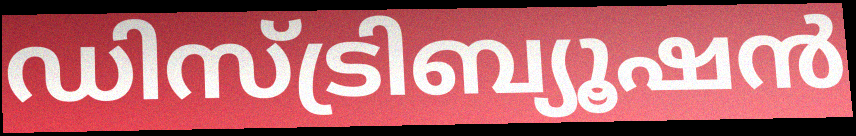
ഡിസ്ട്രിബ്യൂഷൻ